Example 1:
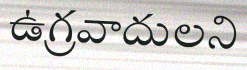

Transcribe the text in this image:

ఉగ్రవాదులని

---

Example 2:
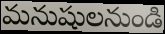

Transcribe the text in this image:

మనుషులనుండి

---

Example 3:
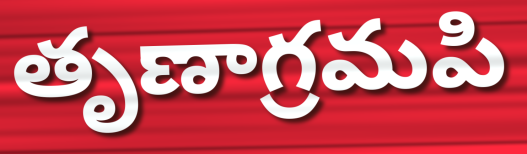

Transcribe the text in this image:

తృణాగ్రమపి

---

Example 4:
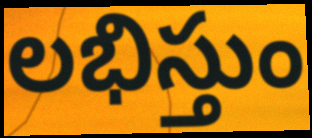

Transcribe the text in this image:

లభిస్తుం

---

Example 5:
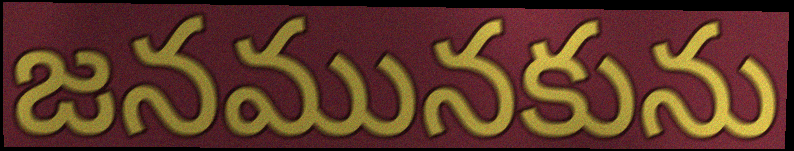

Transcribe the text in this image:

జనమునకును